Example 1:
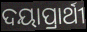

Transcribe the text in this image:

ଦୟାପ୍ରାର୍ଥୀ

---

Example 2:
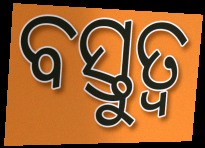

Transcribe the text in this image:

ବସ୍ତୁତ୍ବ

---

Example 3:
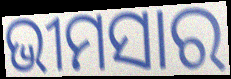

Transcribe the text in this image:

ଭୀମସାର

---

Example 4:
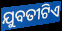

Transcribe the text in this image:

ଯୁବତୀଟିଏ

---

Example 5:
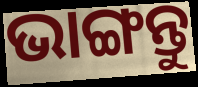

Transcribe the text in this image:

ଭାଙ୍ଗନ୍ତୁ